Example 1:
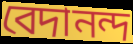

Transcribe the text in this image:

বেদানন্দ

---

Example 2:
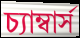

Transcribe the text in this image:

চ্যাম্বার্স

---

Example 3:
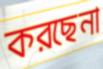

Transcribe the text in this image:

করছেনা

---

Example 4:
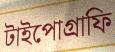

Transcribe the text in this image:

টাইপোগ্রাফি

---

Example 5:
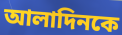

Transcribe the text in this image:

আলাদিনকে